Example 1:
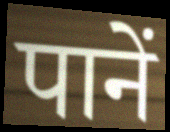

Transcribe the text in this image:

पानें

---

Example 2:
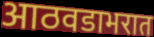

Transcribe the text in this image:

आठवडाभरात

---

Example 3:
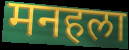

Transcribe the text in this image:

मनहला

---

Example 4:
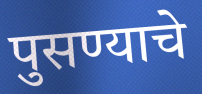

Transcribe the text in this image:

पुसण्याचे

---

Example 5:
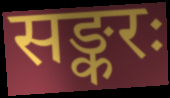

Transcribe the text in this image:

सङ्करः